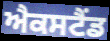
ਐਕਸਟੈਂਡ